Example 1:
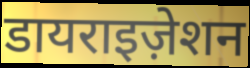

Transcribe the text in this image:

डायराइज़ेशन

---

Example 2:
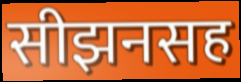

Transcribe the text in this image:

सीझनसह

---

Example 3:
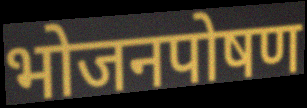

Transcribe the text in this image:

भोजनपोषण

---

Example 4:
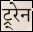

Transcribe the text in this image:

ट्र्रेन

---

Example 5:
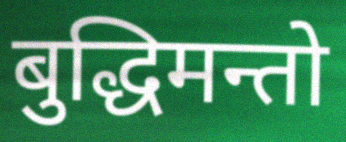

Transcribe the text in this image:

बुद्धिमन्तो